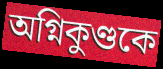
অগ্নিকুণ্ডকে